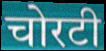
चोरटी